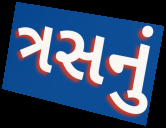
ત્રસનું